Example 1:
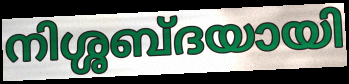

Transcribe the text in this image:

നിശ്ശബ്ദയായി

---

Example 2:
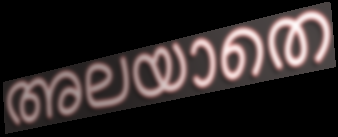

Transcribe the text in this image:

അലയാതെ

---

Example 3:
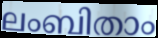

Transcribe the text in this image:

ലംബിതാം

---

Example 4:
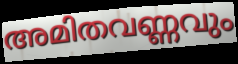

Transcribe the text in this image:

അമിതവണ്ണവും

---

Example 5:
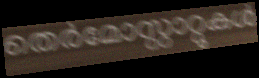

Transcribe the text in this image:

തെർമോസ്റ്റാറ്റുകൾ